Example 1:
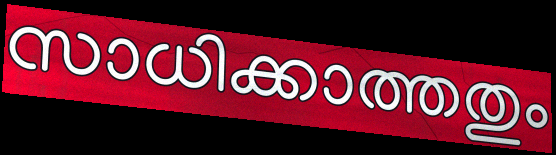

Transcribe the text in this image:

സാധിക്കാത്തതും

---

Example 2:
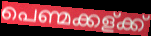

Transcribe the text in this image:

പെണ്മക്കള്ക്ക്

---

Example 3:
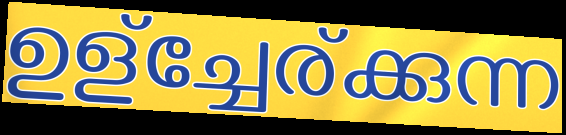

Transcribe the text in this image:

ഉള്ച്ചേര്ക്കുന്ന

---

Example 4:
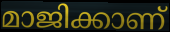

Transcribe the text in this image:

മാജിക്കാണ്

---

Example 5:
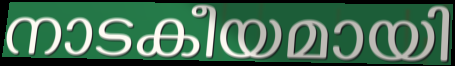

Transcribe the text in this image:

നാടകീയമായി